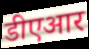
डीएआर